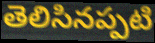
తెలిసినప్పటి